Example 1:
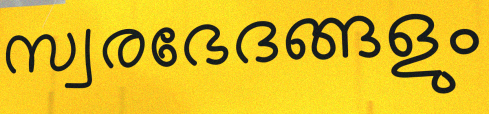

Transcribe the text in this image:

സ്വരഭേദങ്ങളും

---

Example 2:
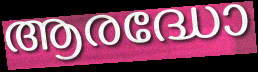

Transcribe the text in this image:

ആരദ്ധോ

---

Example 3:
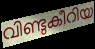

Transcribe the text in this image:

വിണ്ടുകീറിയ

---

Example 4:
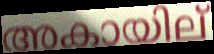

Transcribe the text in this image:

അകായില്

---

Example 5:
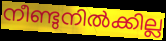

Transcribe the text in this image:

നീണ്ടുനിൽക്കില്ല